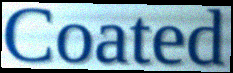
Coated